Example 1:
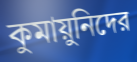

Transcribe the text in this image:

কুমায়ুনিদের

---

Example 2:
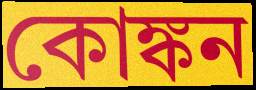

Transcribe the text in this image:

কোঙ্কন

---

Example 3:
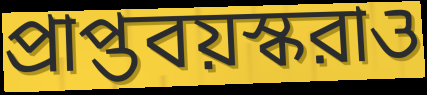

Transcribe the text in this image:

প্রাপ্তবয়স্করাও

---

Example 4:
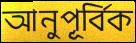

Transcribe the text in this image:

আনুপূর্বিক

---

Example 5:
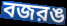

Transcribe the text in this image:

বজরঙ